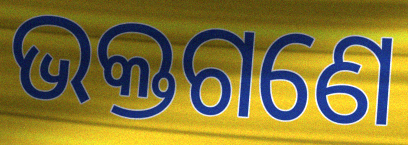
ଭକ୍ତଗଣେ